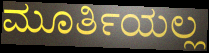
ಮೂರ್ತಿಯಲ್ಲ